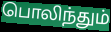
பொலிந்தும்